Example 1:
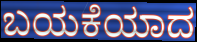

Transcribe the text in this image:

ಬಯಕೆಯಾದ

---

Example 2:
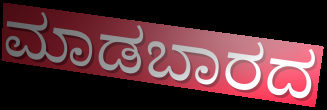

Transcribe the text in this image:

ಮಾಡಬಾರದ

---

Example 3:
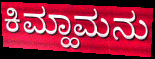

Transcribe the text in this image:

ಕಿಮ್ಹಾಮನು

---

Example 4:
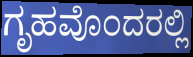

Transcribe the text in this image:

ಗೃಹವೊಂದರಲ್ಲಿ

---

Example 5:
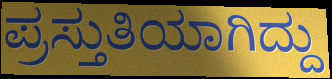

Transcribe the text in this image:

ಪ್ರಸ್ತುತಿಯಾಗಿದ್ದು